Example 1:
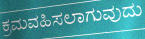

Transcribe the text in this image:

ಕ್ರಮವಹಿಸಲಾಗುವುದು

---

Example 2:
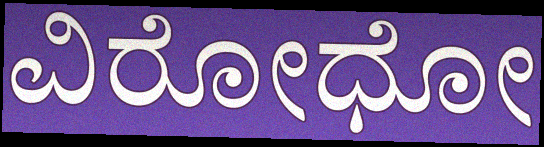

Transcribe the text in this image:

ವಿರೋಧೋ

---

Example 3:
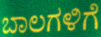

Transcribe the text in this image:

ಬಾಲಗಳಿಗೆ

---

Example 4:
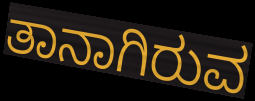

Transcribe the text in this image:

ತಾನಾಗಿರುವ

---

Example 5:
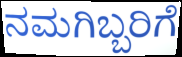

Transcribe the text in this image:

ನಮಗಿಬ್ಬರಿಗೆ